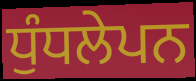
ਧੁੰਧਲੇਪਨ